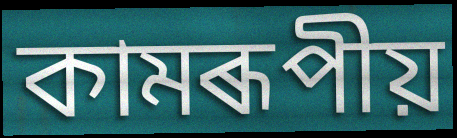
কামৰূপীয়